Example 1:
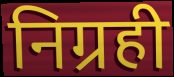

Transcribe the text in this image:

निग्रही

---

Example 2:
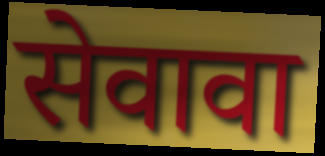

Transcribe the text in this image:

सेवावा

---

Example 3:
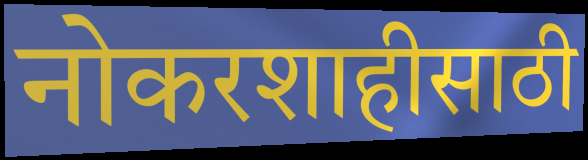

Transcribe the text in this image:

नोकरशाहीसाठी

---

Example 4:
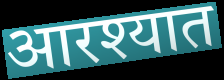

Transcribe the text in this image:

आरश्यात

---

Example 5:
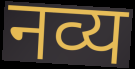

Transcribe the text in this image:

नव्य